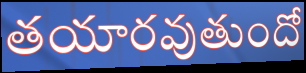
తయారవుతుందో